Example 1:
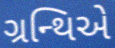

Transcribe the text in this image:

ગ્રન્થિએ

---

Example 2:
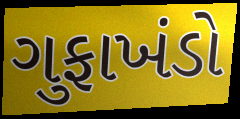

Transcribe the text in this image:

ગુફાખંડો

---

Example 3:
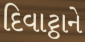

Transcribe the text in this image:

દિવાટ્ઠાને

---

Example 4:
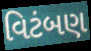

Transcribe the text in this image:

વિટંબણ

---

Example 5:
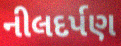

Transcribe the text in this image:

નીલદર્પણ